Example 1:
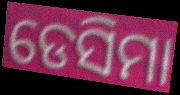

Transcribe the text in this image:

ଡେସିମା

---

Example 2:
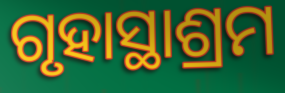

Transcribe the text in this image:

ଗୃହାସ୍ଥାଶ୍ରମ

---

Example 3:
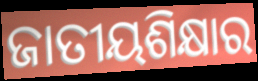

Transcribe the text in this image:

ଜାତୀୟଶିକ୍ଷାର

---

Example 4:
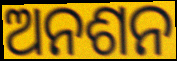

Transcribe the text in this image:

ଅନଶନ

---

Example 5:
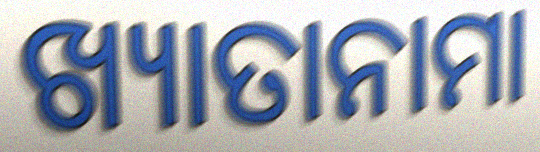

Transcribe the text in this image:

ଖ୍ୟାତାନାମା